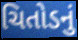
ચિતોડનું